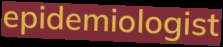
epidemiologist